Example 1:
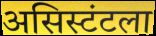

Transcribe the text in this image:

असिस्टंटला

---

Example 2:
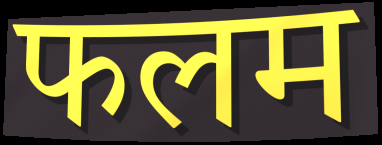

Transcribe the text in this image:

फलम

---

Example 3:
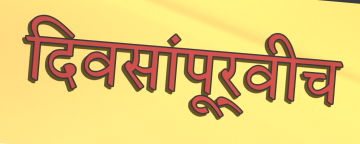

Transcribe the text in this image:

दिवसांपूर्वीच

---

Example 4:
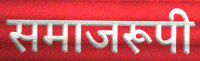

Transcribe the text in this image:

समाजरूपी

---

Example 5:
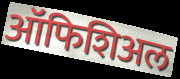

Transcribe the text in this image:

ऑफिशिअल